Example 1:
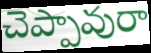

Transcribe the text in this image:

చెప్పావురా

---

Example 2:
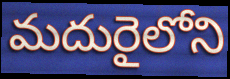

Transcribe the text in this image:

మదురైలోని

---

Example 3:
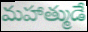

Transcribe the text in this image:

మహాత్ముడే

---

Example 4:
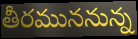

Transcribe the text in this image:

తీరముననున్న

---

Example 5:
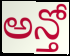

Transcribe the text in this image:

అన్తో